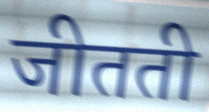
जीतती